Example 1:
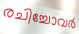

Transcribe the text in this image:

രചിച്ചോവർ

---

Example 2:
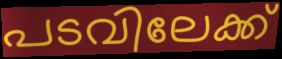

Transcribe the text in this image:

പടവിലേക്ക്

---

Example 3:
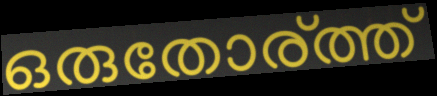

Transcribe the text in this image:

ഒരുതോര്ത്ത്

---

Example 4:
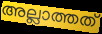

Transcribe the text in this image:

അല്ലാത്തത്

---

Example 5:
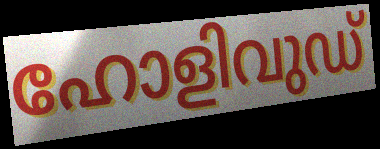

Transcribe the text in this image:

ഹോളിവുഡ്